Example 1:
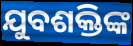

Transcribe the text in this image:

ଯୁବଶକ୍ତିଙ୍କ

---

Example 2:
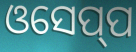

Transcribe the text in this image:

ଓସେପ୍‍ପ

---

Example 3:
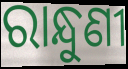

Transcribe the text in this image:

ରାନ୍ଧୁଣୀ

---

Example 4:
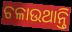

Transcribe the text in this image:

ଚଳାଉଥାନ୍ତି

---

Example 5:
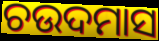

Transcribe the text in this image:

ଚଉଦମାସ